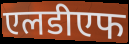
एलडीएफ